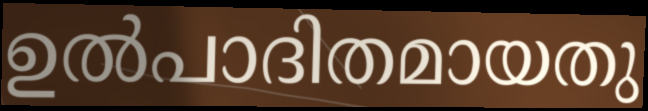
ഉൽപാദിതമായതു